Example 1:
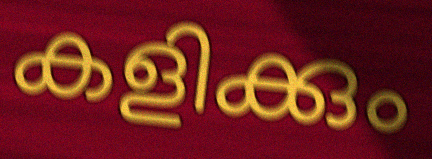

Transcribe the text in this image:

കളിക്കും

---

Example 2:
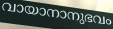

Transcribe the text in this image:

വായാനാനുഭവം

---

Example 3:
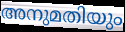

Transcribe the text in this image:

അനുമതിയും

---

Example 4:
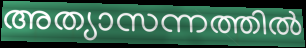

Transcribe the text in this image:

അത്യാസന്നത്തിൽ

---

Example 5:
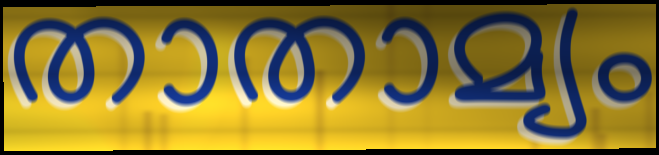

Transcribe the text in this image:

താതാമ്യം